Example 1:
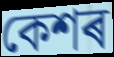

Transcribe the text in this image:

কেশৰ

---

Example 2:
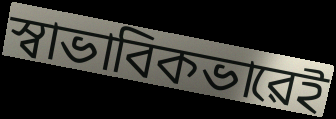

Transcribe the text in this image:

স্বাভাবিকভাৱেই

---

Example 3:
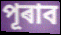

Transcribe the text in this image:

পূৰাব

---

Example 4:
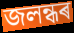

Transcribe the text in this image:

জলন্ধৰ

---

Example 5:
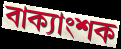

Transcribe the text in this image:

বাক্যাংশক